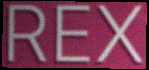
REX